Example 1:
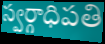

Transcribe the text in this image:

స్వర్గాధిపతి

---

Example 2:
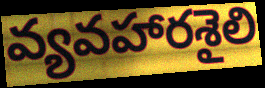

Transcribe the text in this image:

వ్యవహారశైలి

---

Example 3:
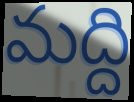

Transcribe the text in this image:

మద్ది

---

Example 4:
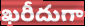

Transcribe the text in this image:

ఖరీదుగా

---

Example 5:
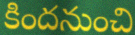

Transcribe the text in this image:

కిందనుంచి